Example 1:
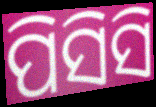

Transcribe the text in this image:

ପିସିସି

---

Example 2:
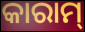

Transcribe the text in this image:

କାରାମ୍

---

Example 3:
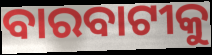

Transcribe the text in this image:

ବାରବାଟୀକୁ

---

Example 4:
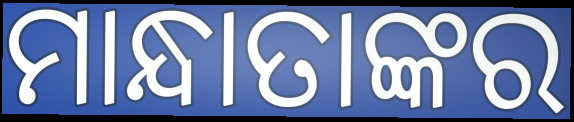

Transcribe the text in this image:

ମାନ୍ଧାତାଙ୍କର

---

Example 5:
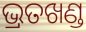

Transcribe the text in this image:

ଭ୍ରତଖଣ୍ଡ